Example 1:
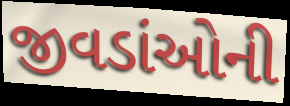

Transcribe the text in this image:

જીવડાંઓની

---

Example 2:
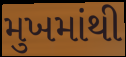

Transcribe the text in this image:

મુખમાંથી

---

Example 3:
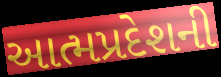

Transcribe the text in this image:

આત્મપ્રદેશની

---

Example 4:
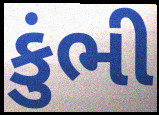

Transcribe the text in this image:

કુંભી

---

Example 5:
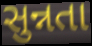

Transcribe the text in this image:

સુન્નતા